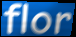
flor